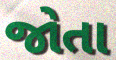
જોતા